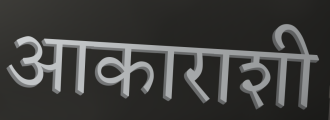
आकाराशी